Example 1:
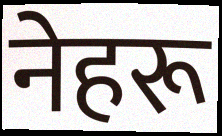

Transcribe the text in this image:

नेहरू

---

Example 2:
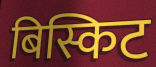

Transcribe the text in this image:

बिस्किट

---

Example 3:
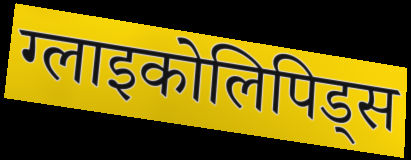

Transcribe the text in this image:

ग्लाइकोलिपिड्स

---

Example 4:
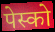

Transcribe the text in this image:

पेस्को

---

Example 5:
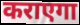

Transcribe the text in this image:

कराएगा